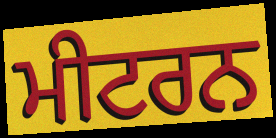
ਮੀਟਰਨ